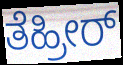
ತೆಹ್ರೀರ್